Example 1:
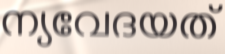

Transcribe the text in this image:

ന്യവേദയത്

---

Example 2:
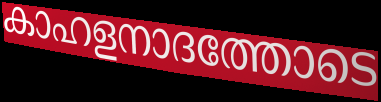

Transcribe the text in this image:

കാഹളനാദത്തോടെ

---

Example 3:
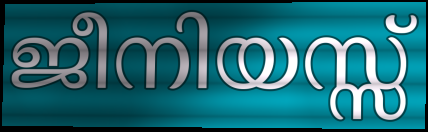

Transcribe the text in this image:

ജീനിയസ്സ്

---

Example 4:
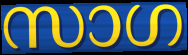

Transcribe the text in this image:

സാഗ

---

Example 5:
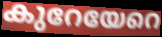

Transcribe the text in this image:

കുറേയേറെ